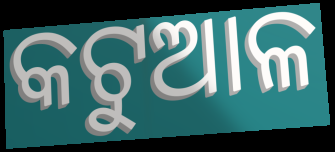
କଟୁଆଳ